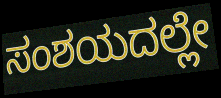
ಸಂಶಯದಲ್ಲೇ